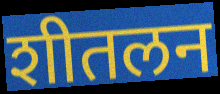
शीतलन